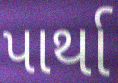
પાર્થા